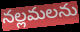
నల్లమలను